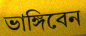
ভাঙ্গিবেন